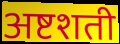
अष्टशती